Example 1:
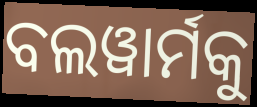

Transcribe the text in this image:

ବଲୱାର୍ମକୁ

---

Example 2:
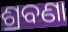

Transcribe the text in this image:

ଶ୍ରବଣା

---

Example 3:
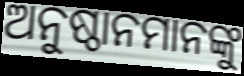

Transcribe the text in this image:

ଅନୁଷ୍ଠାନମାନଙ୍କୁ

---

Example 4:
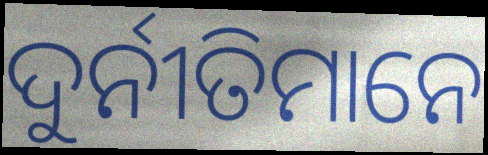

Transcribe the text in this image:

ଦୁର୍ନୀତିମାନେ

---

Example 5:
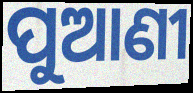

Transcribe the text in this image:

ପୁଆଣୀ